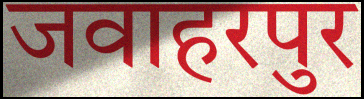
जवाहरपुर